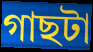
গাছটা